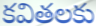
కవితలకు